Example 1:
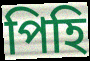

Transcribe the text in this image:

পিহি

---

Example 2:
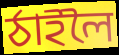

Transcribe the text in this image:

ঠাইলৈ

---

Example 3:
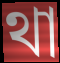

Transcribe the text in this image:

থা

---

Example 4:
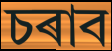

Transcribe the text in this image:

চৰাব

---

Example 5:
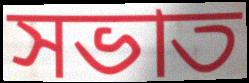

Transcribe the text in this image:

সভাত